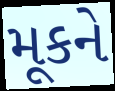
મૂકને